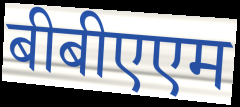
बीबीएएम